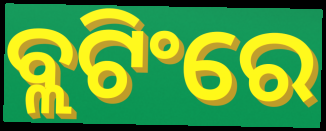
ବ୍ଲଟିଂରେ